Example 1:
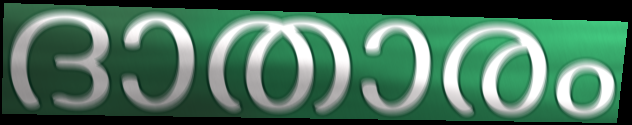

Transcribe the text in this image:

ദാതാരം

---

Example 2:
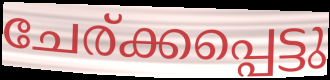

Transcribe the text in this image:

ചേര്ക്കപ്പെട്ടു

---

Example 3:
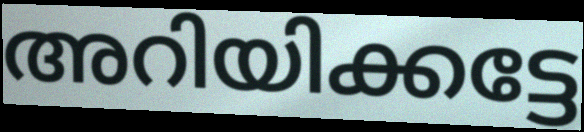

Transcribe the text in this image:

അറിയിക്കട്ടേ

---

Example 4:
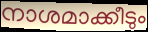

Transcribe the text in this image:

നാശമാക്കീടും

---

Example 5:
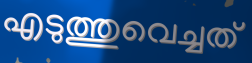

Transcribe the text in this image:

എടുത്തുവെച്ചത്